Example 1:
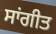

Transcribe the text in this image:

ਸਾਂਗੀਤ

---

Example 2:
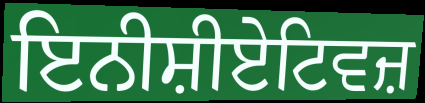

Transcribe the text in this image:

ਇਨੀਸ਼ੀਏਟਿਵਜ਼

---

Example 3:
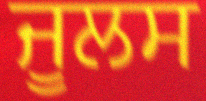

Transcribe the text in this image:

ਜੂਲਸ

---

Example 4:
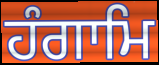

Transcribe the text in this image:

ਹੰਗਾਮਿ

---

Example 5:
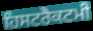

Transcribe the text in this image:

ਹਿਸਟਰੈਕਟਮੀ